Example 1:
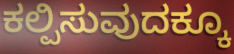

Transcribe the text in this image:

ಕಲ್ಪಿಸುವುದಕ್ಕೂ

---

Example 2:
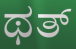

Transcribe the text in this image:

ಥತ್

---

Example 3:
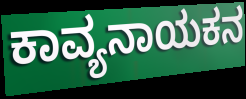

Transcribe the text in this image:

ಕಾವ್ಯನಾಯಕನ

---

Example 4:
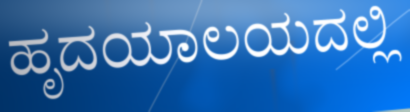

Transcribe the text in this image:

ಹೃದಯಾಲಯದಲ್ಲಿ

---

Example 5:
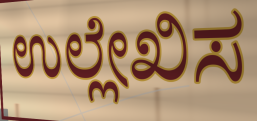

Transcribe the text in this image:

ಉಲ್ಲೇಖಿಸ